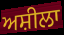
ਅਸ਼ੀਲਾ